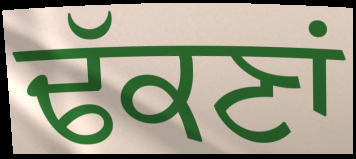
ਢੱਕਣਾਂ